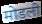
मोडली